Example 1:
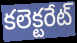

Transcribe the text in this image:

కలెక్టరేట్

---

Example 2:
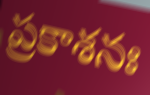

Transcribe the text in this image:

ప్రకాశనః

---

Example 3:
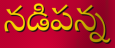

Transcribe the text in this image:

నడిపన్న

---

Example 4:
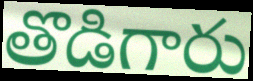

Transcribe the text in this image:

తొడిగారు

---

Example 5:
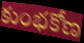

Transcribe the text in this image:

కుంభకోణ